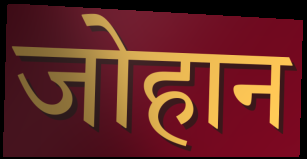
जोहान